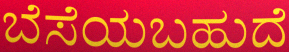
ಬೆಸೆಯಬಹುದೆ